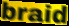
braid